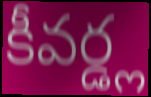
కీవర్డ్ల